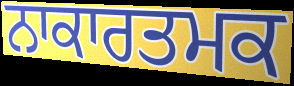
ਨਾਕਾਰਤਮਕ